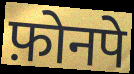
फ़ोनपे